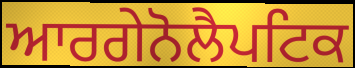
ਆਰਗੇਨੋਲੈਪਟਿਕ